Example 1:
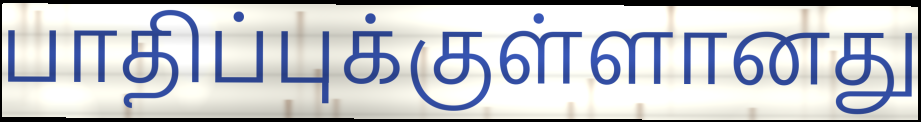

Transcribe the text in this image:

பாதிப்புக்குள்ளானது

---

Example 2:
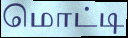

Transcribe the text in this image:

மொட்டி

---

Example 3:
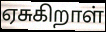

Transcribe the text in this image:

ஏசுகிறாள்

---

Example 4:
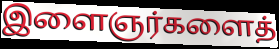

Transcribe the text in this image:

இளைஞர்களைத்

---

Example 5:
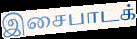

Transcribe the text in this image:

இசைபாடக்